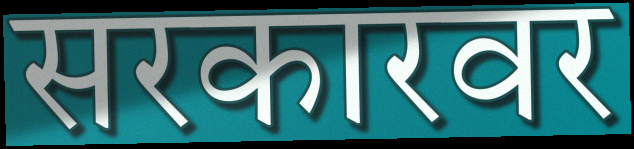
सरकारवर